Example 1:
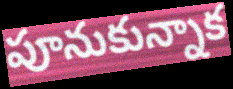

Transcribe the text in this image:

పూనుకున్నాక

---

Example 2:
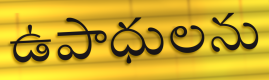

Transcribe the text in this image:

ఉపాధులను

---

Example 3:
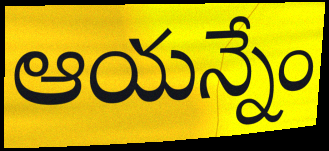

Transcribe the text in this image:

ఆయన్నేం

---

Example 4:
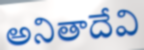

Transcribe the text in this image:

అనితాదేవి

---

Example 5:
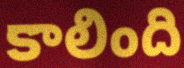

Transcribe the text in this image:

కాలింది